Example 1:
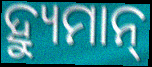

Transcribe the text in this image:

ହ୍ୟୁମାନ୍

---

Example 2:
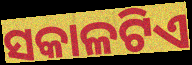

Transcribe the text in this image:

ସକାଳଟିଏ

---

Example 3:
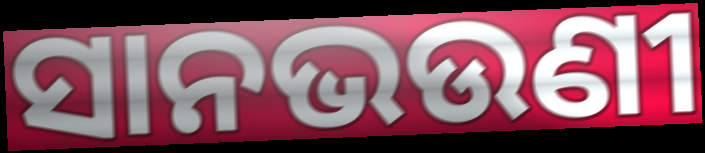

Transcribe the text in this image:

ସାନଭଉଣୀ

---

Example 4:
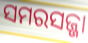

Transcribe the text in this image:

ସମରସଜ୍ଜା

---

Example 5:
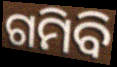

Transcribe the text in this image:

ଗମିବି